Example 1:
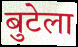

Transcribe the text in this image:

बुटेला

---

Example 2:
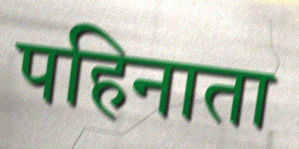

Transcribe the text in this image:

पहिनाता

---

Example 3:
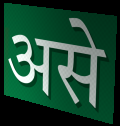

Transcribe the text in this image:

असे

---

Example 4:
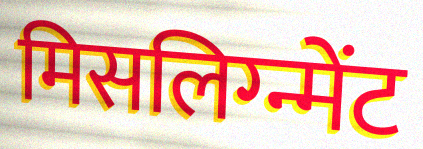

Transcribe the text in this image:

मिसलिग्न्मेंट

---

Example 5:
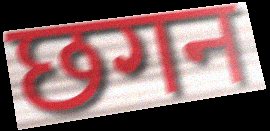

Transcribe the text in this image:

छगन